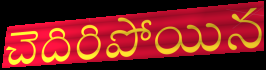
చెదిరిపోయిన